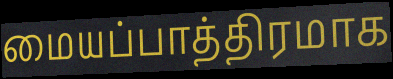
மையப்பாத்திரமாக